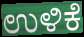
ಉಳಿಕೆ